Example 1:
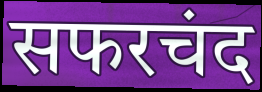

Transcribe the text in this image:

सफरचंद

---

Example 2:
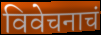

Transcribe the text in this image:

विवेचनाचं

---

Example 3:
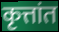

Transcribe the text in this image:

कृत्तांत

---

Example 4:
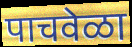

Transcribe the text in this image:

पाचवेळा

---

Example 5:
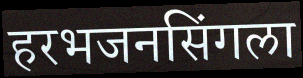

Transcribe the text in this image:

हरभजनसिंगला